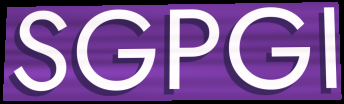
SGPGI